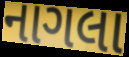
નાગલા